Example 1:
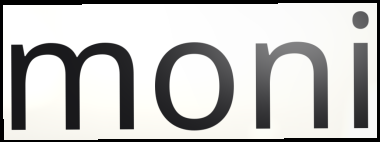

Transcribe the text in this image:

moni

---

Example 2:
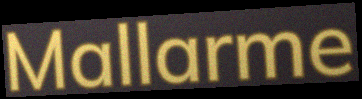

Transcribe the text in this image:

Mallarme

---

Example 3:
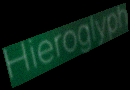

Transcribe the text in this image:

Hieroglyph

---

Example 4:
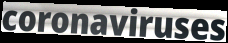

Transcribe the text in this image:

coronaviruses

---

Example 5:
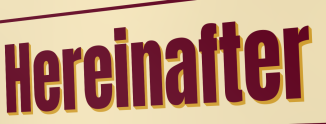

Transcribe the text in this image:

Hereinafter